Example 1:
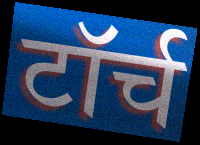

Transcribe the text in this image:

टॉर्च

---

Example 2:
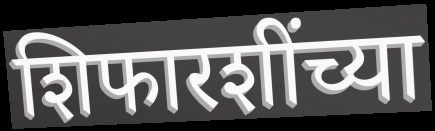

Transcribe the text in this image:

शिफारशींच्या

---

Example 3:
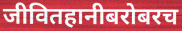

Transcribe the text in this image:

जीवितहानीबरोबरच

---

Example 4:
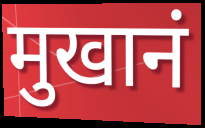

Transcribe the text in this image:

मुखानं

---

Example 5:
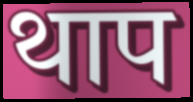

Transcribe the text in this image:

थाप